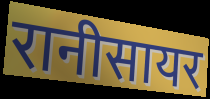
रानीसायर